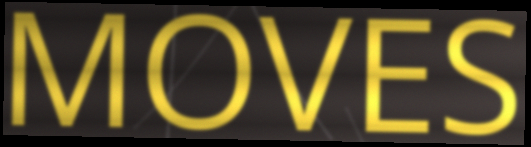
MOVES